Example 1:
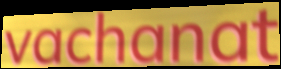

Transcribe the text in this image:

vachanat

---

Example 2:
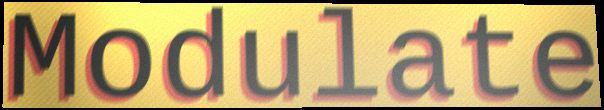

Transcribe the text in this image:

Modulate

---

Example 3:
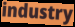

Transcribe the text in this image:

industry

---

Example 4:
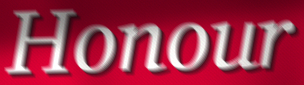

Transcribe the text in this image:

Honour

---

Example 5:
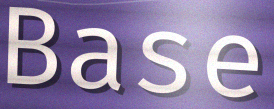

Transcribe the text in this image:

Base